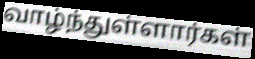
வாழ்ந்துள்ளார்கள்